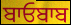
ਬਾਓਬਾਬ